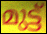
മുട്ട്